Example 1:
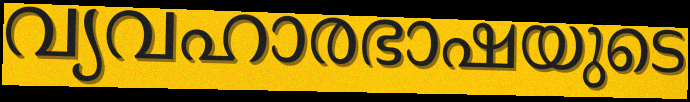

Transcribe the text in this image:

വ്യവഹാരഭാഷയുടെ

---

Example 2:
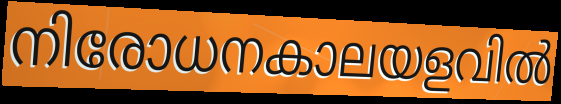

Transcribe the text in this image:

നിരോധനകാലയളവിൽ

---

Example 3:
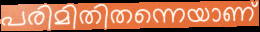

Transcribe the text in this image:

പരിമിതിതന്നെയാണ്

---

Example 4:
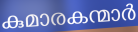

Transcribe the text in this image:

കുമാരകന്മാർ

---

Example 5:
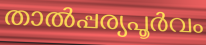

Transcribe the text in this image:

താൽപ്പര്യപൂർവം